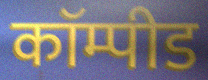
कॉम्पीड